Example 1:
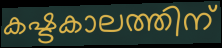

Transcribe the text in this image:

കഷ്ടകാലത്തിന്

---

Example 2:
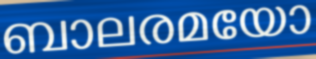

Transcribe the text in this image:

ബാലരമയോ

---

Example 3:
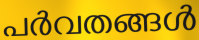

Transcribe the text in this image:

പർവതങ്ങൾ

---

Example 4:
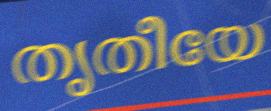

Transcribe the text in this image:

തൃതീയേ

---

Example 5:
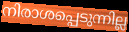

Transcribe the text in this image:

നിരാശപ്പെടുന്നില്ല